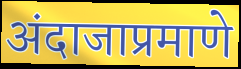
अंदाजाप्रमाणे